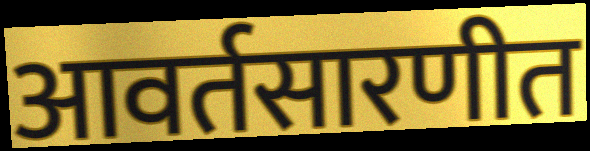
आवर्तसारणीत